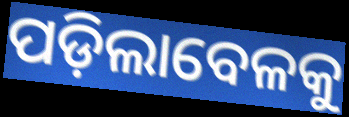
ପଡ଼ିଲାବେଳକୁ